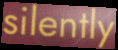
silently